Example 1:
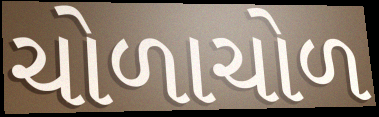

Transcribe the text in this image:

ચોળાચોળ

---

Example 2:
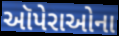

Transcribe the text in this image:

ઑપેરાઓના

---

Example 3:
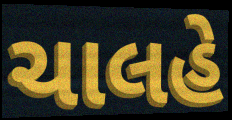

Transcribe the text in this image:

ચાલહે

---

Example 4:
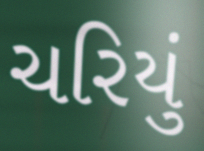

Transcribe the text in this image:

ચરિયું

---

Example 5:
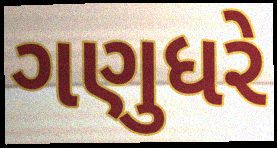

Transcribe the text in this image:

ગણુધરે